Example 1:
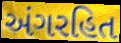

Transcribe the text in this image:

અંગરહિત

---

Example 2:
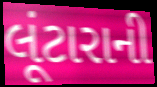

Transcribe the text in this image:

લૂંટારાની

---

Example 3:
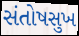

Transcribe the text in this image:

સંતોષસુખ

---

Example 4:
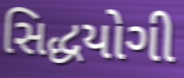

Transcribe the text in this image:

સિદ્ધયોગી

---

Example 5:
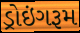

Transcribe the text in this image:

ડ્રોઇંગરૂમ